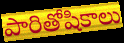
పారితోషికాలు